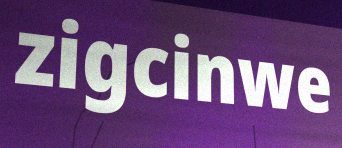
zigcinwe